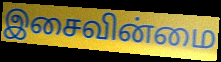
இசைவின்மை